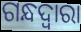
ଗନ୍ଧଦ୍ୱାରା